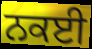
ਨਕਈ